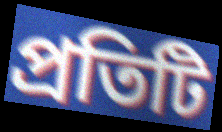
প্রতিটি